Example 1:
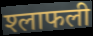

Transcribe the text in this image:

श्लाफली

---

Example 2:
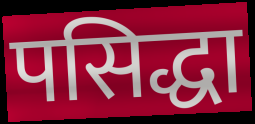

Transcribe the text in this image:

पसिद्धा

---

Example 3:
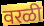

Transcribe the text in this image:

वरळी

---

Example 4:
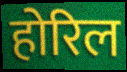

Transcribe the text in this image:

होरिल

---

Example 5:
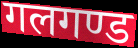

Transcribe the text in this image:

गलगण्ड